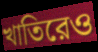
খাতিরেও